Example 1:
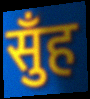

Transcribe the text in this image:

सुँह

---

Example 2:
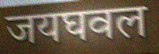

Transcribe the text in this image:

जयघवल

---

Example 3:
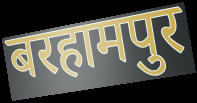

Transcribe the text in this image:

बरहामपुर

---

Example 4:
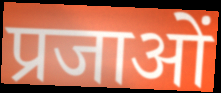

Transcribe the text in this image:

प्रजाओं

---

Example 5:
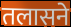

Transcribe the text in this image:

तलासने